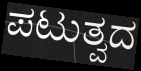
ಪಟುತ್ವದ